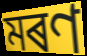
মৰণ